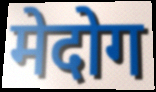
मेदोग